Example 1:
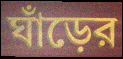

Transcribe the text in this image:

ঘাঁড়ের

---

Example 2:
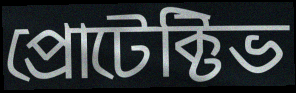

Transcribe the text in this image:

প্রোটেক্টিভ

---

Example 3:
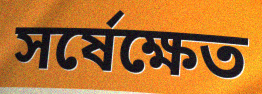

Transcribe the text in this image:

সর্ষেক্ষেত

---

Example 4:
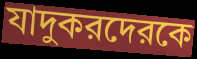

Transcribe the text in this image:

যাদুকরদেরকে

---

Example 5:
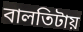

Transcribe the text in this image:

বালতিটায়